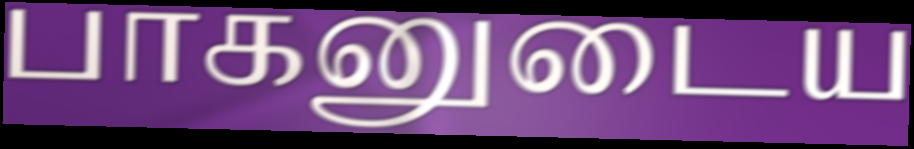
பாகனுடைய